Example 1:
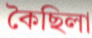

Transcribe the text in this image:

কৈছিলা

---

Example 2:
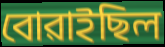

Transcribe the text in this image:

বোৱাইছিল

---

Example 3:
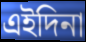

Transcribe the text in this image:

এইদিনা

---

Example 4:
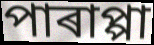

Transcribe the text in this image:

পাৰাপ্পা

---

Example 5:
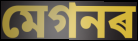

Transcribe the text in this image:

মেগনৰ